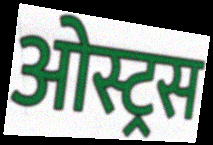
ओस्ट्रस